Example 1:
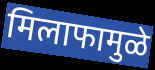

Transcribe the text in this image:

मिलाफामुळे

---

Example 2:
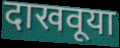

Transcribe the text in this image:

दाखवूया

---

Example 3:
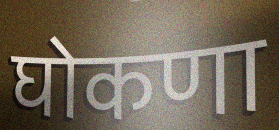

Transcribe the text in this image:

घोकणा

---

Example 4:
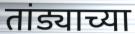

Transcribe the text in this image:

तांड्याच्या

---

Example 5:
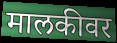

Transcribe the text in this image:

मालकीवर